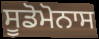
ਸੂਡੋਮੋਨਾਸ